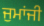
ਜੁਮਾਂਜੀ